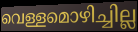
വെള്ളമൊഴിച്ചില്ല